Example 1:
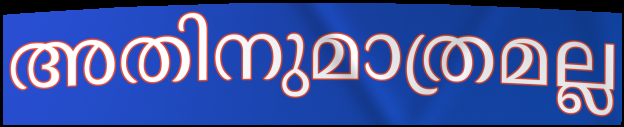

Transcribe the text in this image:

അതിനുമാത്രമല്ല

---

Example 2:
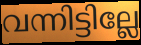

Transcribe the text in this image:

വന്നിട്ടില്ലേ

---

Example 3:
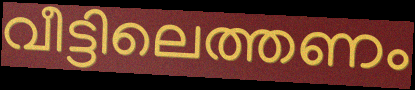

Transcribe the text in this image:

വീട്ടിലെത്തണം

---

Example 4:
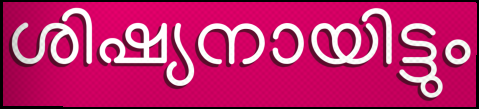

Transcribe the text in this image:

ശിഷ്യനായിട്ടും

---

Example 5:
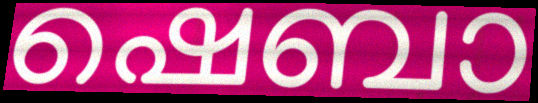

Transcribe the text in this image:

ഷെബാ